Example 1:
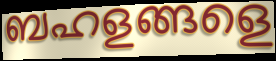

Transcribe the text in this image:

ബഹളങ്ങളെ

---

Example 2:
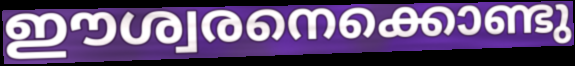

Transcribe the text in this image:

ഈശ്വരനെക്കൊണ്ടു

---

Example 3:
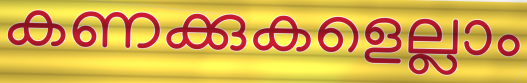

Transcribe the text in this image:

കണക്കുകളെല്ലാം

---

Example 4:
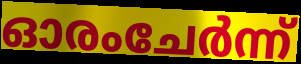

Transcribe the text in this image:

ഓരംചേർന്ന്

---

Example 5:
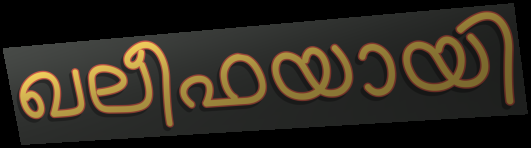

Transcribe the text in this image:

ഖലീഫയായി